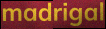
madrigal